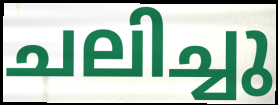
ചലിച്ചു